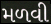
મળવી